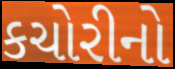
કચોરીનો